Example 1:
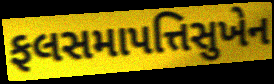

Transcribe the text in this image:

ફલસમાપત્તિસુખેન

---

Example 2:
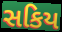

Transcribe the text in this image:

સકિય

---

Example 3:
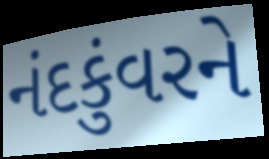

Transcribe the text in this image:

નંદકુંવરને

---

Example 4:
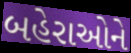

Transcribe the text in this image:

બહેરાઓને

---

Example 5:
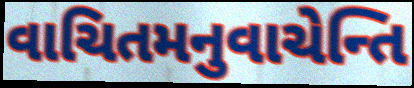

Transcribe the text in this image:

વાચિતમનુવાચેન્તિ